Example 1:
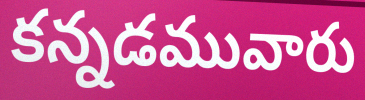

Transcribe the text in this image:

కన్నడమువారు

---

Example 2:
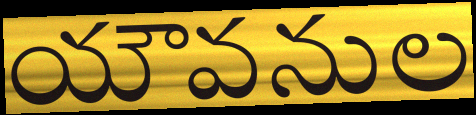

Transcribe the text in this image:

యౌవనుల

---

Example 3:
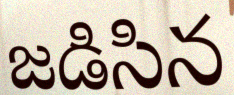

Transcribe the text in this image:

జడిసిన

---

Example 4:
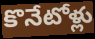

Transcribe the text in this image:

కొనేటోళ్లు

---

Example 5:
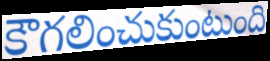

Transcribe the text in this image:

కౌగలించుకుంటుంది